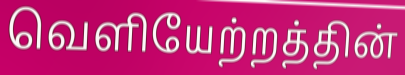
வெளியேற்றத்தின்